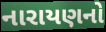
નારાયણનો